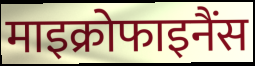
माइक्रोफाइनैंस